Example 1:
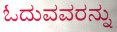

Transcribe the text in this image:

ಓದುವವರನ್ನು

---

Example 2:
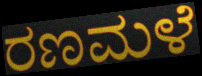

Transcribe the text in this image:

ರಣಮಳೆ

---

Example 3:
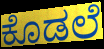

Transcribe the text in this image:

ಕೊಡಲೆ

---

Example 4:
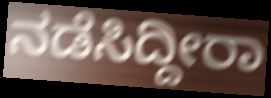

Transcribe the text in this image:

ನಡೆಸಿದ್ದೀರಾ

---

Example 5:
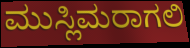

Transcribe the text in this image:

ಮುಸ್ಲಿಮರಾಗಲಿ